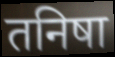
तनिषा